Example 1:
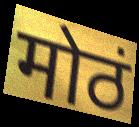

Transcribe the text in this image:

मोठं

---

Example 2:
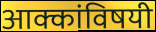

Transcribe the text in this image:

आक्कांविषयी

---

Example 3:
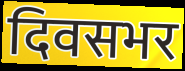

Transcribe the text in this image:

दिवसभर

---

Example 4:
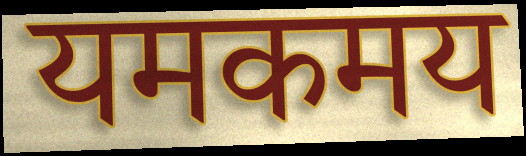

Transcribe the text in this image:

यमकमय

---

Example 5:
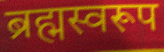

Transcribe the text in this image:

ब्रह्मस्वरूप